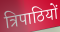
त्रिपाठियों